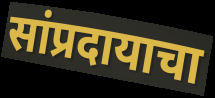
सांप्रदायाचा